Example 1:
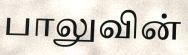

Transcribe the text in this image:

பாலுவின்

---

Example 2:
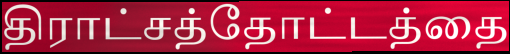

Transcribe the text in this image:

திராட்சத்தோட்டத்தை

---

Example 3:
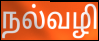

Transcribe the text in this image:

நல்வழி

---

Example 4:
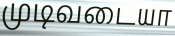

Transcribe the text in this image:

முடிவடையா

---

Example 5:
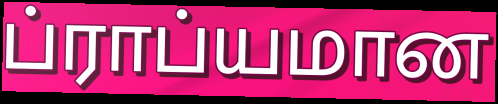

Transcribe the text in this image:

ப்ராப்யமான